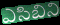
ఎసిబిని